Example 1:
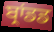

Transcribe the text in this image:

ਬ੍ਰਾਂਡਡ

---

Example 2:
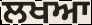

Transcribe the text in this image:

ਲਖਆ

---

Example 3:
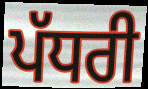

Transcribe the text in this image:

ਪੱਧਰੀ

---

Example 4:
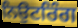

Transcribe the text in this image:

ਨਿਉਟਰਿੰਗ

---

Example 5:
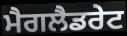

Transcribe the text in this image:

ਮੈਗਲੈਡਰੇਟ